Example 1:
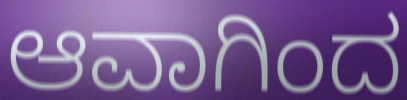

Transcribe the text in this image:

ಆವಾಗಿಂದ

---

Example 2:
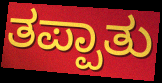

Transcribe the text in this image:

ತಪ್ಪಾತು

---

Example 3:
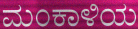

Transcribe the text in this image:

ಮಂಕಾಳಿಯ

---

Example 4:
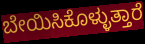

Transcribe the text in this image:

ಬೇಯಿಸಿಕೊಳ್ಳುತ್ತಾರೆ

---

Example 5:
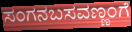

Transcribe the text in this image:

ಸಂಗನಬಸವಣ್ಣಂಗೆ